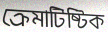
ক্রেমাটিষ্টিক